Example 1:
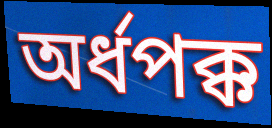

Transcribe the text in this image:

অর্ধপক্ক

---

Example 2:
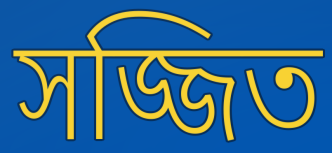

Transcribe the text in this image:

সজ্জিত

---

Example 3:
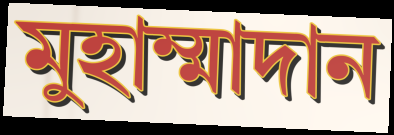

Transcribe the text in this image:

মুহাম্মাদান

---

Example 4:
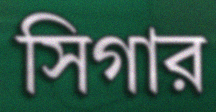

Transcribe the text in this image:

সিগার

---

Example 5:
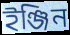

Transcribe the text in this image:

ইঞ্জিন